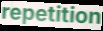
repetition